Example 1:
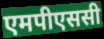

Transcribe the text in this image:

एमपीएससी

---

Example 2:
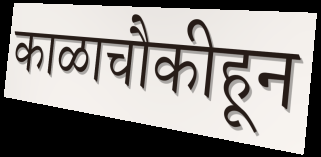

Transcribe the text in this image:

काळाचौकीहून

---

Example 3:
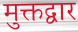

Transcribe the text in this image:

मुक्तद्वार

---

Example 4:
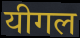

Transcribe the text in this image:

यीगल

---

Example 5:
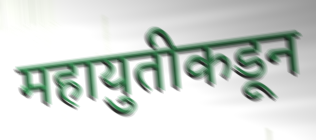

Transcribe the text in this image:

महायुतीकडून